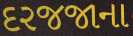
દરજજાના